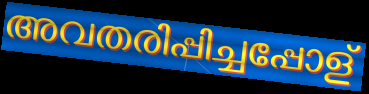
അവതരിപ്പിച്ചപ്പോള്